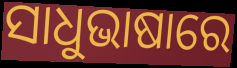
ସାଧୁଭାଷାରେ